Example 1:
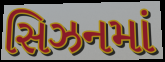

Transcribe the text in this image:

સિઝનમાં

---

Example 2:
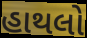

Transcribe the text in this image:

હાથલો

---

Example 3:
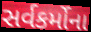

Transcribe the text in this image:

સર્વકર્મોના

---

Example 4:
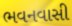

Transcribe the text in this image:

ભવનવાસી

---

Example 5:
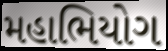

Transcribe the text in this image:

મહાભિયોગ